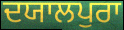
ਦਯਾਲਪੁਰਾ